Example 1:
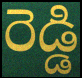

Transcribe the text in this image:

రెడ్డి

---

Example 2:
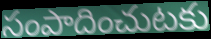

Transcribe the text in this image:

సంపాదించుటకు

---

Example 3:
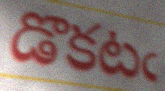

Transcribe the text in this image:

డొకటఁ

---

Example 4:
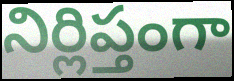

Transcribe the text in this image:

నిర్లిప్తంగా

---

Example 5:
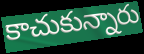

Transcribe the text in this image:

కాచుకున్నారు